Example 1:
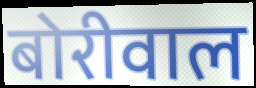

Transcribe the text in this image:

बोरीवाल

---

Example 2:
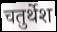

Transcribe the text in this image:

चतुर्थेश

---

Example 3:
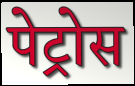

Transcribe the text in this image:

पेट्रोस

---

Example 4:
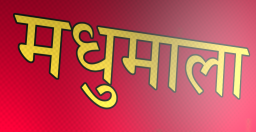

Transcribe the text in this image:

मधुमाला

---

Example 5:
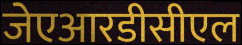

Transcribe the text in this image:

जेएआरडीसीएल